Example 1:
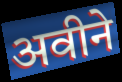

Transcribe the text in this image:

अवीने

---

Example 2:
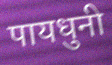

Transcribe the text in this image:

पायधुनी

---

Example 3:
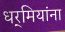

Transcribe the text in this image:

धर्मियांना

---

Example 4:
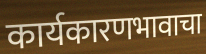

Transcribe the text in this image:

कार्यकारणभावाचा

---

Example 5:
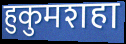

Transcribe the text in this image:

हुकुमशहा